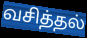
வசித்தல்